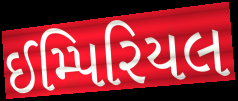
ઈમ્પિરિયલ